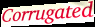
Corrugated